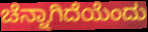
ಚೆನ್ನಾಗಿದೆಯೆಂದು